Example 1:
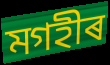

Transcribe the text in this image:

মগহীৰ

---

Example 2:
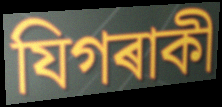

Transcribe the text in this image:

যিগৰাকী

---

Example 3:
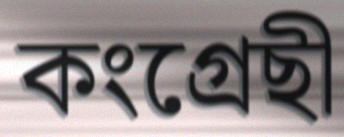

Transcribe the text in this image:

কংগ্ৰেছী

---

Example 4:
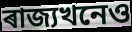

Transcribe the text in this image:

ৰাজ্যখনেও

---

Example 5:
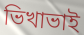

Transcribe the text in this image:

ভিখাভাই